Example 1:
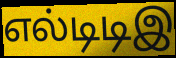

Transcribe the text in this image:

எல்டிடிஇ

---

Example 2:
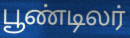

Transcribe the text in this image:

பூண்டிலர்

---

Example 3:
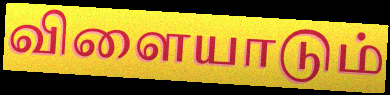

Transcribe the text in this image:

விளையாடும்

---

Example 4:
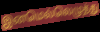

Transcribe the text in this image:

இனமெல்லெழுத்து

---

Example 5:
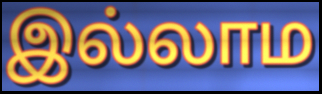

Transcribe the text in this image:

இல்லாம